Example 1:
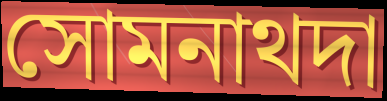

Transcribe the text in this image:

সোমনাথদা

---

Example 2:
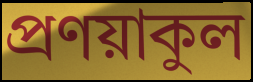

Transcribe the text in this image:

প্রণয়াকুল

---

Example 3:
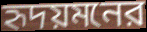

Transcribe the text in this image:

হৃদয়মনের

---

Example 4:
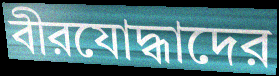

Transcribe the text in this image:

বীরযোদ্ধাদের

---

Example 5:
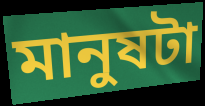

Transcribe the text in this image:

মানুষটা